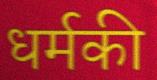
धर्मकी